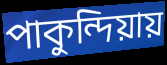
পাকুন্দিয়ায়